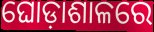
ଘୋଡ଼ାଶାଳରେ